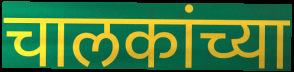
चालकांच्या